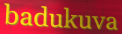
badukuva